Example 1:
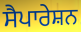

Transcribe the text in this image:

ਸੈਪਾਰੇਸ਼ਨ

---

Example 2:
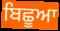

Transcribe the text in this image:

ਬਿਛੂਆ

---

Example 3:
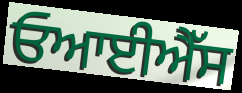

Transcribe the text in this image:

ਓਆਈਐੱਸ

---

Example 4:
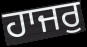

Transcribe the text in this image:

ਹਾਜਰੁ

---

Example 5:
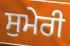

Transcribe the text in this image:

ਸੁਮੇਰੀ